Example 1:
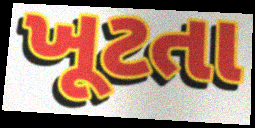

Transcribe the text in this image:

ખૂટતા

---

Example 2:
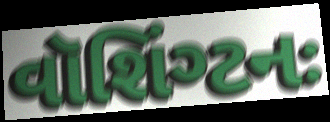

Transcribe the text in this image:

વૉશિંગ્ટનઃ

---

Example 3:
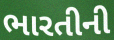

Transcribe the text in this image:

ભારતીની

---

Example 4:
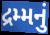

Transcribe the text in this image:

દ્રમ્મનું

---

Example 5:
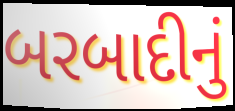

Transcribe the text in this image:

બરબાદીનું